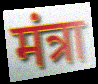
मंत्रा